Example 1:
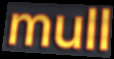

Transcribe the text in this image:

mull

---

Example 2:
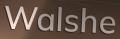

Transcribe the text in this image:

Walshe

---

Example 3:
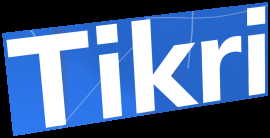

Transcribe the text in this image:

Tikri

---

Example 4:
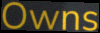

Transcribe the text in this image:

Owns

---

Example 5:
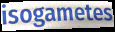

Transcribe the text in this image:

isogametes